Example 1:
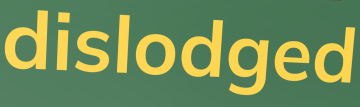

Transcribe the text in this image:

dislodged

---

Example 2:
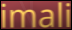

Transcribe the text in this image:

imali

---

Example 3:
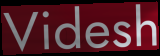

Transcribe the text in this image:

Videsh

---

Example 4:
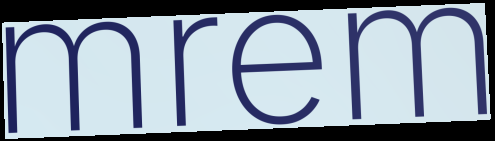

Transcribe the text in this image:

mrem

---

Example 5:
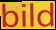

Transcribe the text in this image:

bild